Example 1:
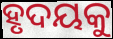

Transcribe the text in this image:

ହୃଦୟକୁ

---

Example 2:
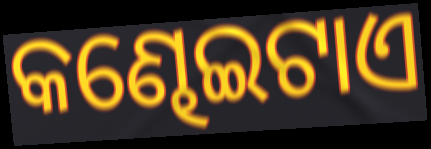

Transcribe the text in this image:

କଣ୍ଢେଇଟାଏ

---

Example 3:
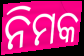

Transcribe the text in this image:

ନିମକ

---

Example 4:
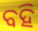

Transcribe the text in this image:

ବହି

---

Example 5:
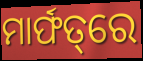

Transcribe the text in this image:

ମାର୍ଫତ୍‌ରେ